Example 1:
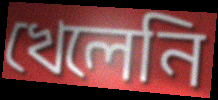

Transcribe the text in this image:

খেলেনি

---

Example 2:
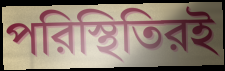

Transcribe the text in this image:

পরিস্থিতিরই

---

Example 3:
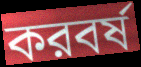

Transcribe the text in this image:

করবর্ষ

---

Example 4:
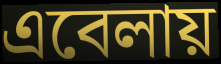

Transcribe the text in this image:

এবেলায়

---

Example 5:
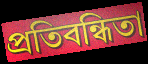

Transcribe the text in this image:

প্রতিবন্ধিতা